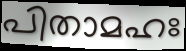
പിതാമഹഃ